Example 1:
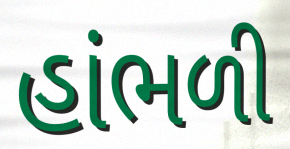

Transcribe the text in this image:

હાંભળી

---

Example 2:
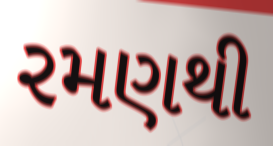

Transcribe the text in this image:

રમણથી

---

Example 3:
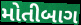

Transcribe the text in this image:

મોતીબાગ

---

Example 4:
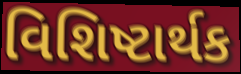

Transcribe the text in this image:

વિશિષ્ટાર્થક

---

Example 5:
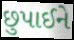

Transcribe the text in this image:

છુપાઈને